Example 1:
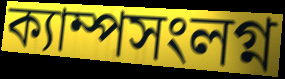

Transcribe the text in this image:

ক্যাম্পসংলগ্ন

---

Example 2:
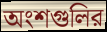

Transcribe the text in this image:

অংশগুলির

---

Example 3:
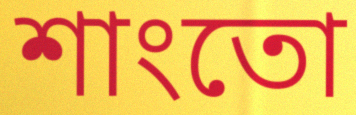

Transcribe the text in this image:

শাংতো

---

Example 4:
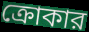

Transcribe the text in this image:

ক্রোকার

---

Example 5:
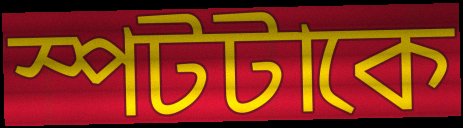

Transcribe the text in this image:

স্পটটাকে